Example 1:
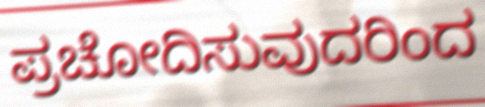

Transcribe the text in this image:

ಪ್ರಚೋದಿಸುವುದರಿಂದ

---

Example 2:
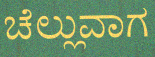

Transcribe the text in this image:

ಚೆಲ್ಲುವಾಗ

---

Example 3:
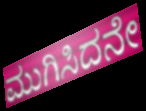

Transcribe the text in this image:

ಮುಗಿಸಿದನೇ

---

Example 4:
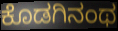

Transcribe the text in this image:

ಕೊಡಗಿನಂಥ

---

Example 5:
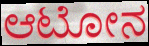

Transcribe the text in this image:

ಆಟೋನ